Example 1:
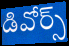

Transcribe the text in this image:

డివోర్స్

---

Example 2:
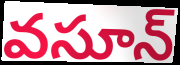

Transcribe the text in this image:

వసూన్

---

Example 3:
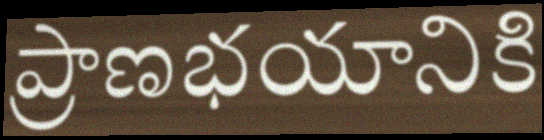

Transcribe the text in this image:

ప్రాణభయానికి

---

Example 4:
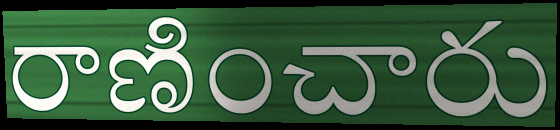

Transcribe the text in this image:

రాణించారు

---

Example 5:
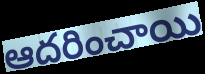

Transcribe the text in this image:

ఆదరించాయి